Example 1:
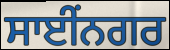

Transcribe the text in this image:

ਸਾਈਂਨਗਰ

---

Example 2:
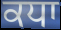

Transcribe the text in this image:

ਕਧਾ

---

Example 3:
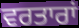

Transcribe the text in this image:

ਵਰਤਾਰਾਂ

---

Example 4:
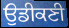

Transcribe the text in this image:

ਉਡੀਕਣੀ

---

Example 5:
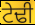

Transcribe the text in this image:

ਟੇਢੀ